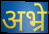
अभ्रे